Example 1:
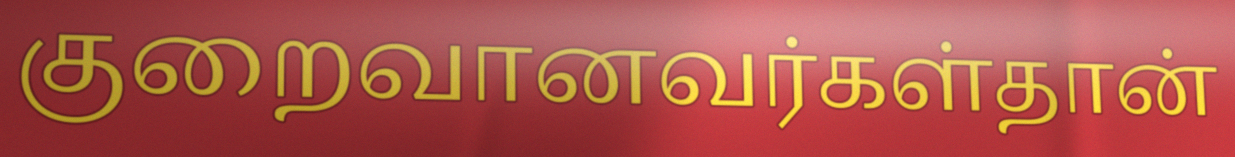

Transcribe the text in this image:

குறைவானவர்கள்தான்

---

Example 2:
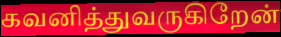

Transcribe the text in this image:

கவனித்துவருகிறேன்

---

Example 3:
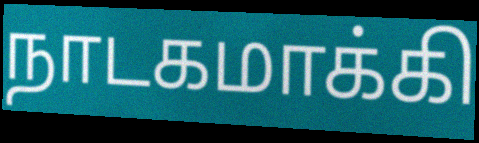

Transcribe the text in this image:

நாடகமாக்கி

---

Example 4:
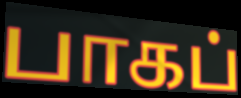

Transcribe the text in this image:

பாகப்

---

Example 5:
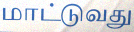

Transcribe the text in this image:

மாட்டுவது